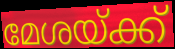
മേശയ്ക്ക്